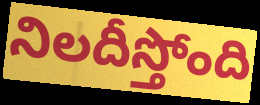
నిలదీస్తోంది